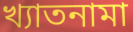
খ্যাতনামা